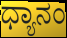
ಧ್ಯಾನಂ